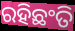
ରହିଛଂତି